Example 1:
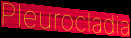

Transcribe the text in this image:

Pleurocladia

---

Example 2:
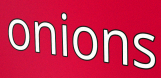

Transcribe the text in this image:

onions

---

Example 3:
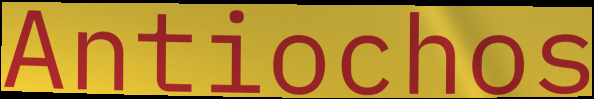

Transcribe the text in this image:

Antiochos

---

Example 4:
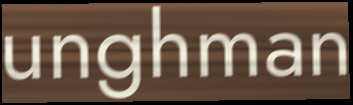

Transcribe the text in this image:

unghman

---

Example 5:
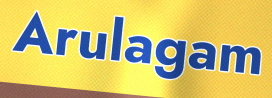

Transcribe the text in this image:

Arulagam